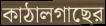
কাঠালগাছের